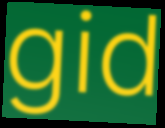
gid